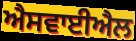
ਐਸਵਾਈਐਲ